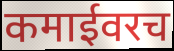
कमाईवरच